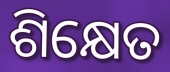
ଶିକ୍ଷେତ